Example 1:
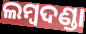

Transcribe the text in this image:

ଲମ୍ୱଦଣ୍ଡା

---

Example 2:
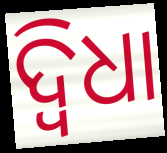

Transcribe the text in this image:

ଦ୍ବିଧା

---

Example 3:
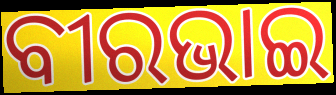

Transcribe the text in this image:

ବୀରଭାଇ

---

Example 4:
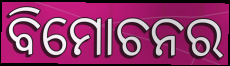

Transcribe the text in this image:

ବିମୋଚନର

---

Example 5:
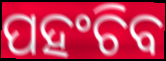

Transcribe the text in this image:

ପହଂଚିବ